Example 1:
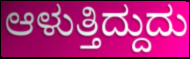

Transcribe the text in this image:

ಆಳುತ್ತಿದ್ದುದು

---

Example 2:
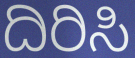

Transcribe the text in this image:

ದಿರಿಸಿ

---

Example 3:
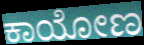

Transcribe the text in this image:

ಕಾಯೋಣ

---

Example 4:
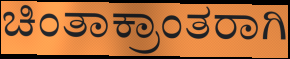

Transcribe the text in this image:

ಚಿಂತಾಕ್ರಾಂತರಾಗಿ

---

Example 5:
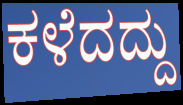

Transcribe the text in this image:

ಕಳೆದದ್ದು